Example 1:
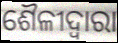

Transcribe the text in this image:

ଶୈଳୀଦ୍ୱାରା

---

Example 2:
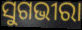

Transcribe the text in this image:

ସୁଗଭୀରା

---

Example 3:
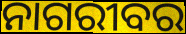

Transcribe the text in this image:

ନାଗରୀବର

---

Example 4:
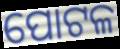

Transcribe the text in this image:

ପୋଟଳ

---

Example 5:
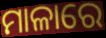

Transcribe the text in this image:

ମାଳାରେ